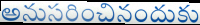
అనుసరించినందుకు